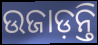
ଉଜାଡ଼ନ୍ତି